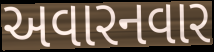
અવારનવાર